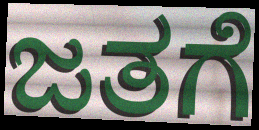
ಜತಗೆ